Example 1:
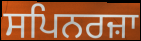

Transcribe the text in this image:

ਸਪਿਨਰਜ਼ਾ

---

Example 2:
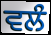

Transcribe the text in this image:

ਵਲੰ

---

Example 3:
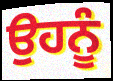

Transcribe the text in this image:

ਉਹਨੂੰ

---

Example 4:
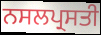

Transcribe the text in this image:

ਨਸਲਪ੍ਰਸਤੀ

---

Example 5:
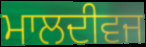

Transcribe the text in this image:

ਮਾਲਦੀਵਜ